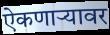
ऐकणाऱ्यावर